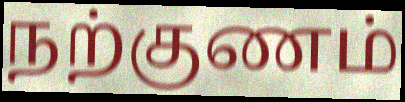
நற்குணம்